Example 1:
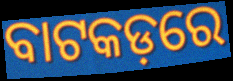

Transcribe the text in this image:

ବାଟକଡ଼ରେ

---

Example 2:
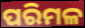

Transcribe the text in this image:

ପରିମଳ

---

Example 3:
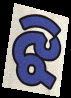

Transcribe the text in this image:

ଝି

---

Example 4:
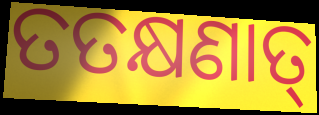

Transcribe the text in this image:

ତତକ୍ଷଣାତ୍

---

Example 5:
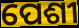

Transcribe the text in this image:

ପେଶୀ